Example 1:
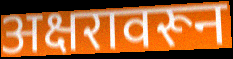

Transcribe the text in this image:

अक्षरावरून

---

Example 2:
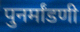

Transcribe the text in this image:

पुनर्मांडणी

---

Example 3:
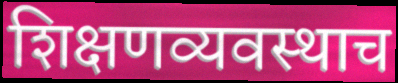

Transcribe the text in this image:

शिक्षणव्यवस्थाच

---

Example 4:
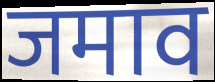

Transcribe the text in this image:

जमाव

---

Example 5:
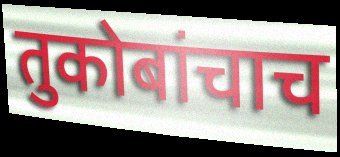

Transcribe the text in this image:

तुकोबांचाच